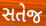
સતેજ